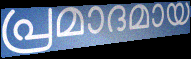
പ്രമാദമായ